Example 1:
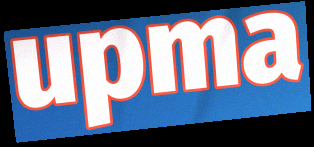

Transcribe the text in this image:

upma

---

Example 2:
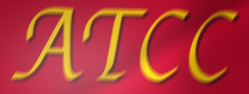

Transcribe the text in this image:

ATCC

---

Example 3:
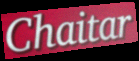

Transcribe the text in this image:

Chaitar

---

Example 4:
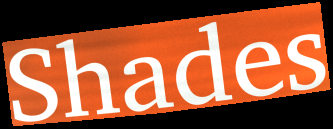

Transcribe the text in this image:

Shades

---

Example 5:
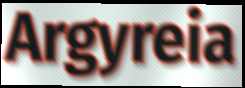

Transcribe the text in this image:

Argyreia